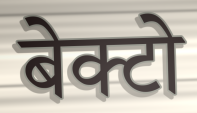
बेक्टो